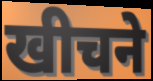
खीचने